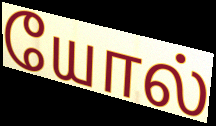
யோல்